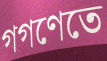
গগণেতে